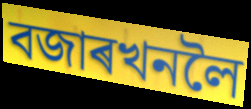
বজাৰখনলৈ